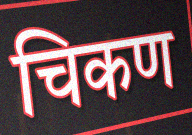
चिकण